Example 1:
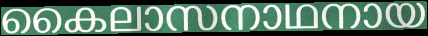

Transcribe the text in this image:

കൈലാസനാഥനായ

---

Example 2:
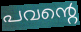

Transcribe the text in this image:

പവന്റെ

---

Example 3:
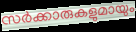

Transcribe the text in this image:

സർക്കാരുകളുമായും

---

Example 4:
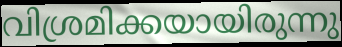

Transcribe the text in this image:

വിശ്രമിക്കയായിരുന്നു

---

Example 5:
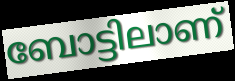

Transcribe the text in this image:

ബോട്ടിലാണ്